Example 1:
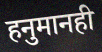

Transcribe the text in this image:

हनुमानही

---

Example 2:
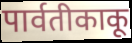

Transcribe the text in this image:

पार्वतीकाकू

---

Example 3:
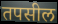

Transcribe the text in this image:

तपसील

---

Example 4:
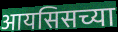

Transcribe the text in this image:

आयसिसच्या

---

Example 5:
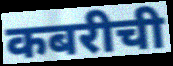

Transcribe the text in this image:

कबरीची